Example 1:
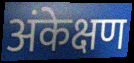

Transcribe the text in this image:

अंकेक्षण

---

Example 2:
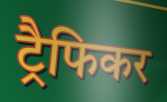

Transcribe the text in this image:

ट्रैफिकर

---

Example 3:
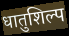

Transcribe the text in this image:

धातुशिल्प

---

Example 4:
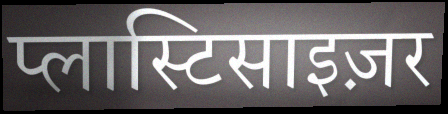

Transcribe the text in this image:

प्लास्टिसाइज़र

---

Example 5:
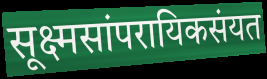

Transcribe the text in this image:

सूक्ष्मसांपरायिकसंयत